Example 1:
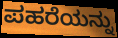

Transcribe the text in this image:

ಪಹರೆಯನ್ನು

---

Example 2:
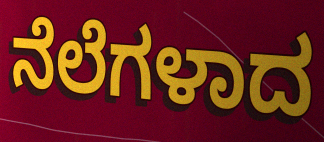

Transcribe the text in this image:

ನೆಲೆಗಳಾದ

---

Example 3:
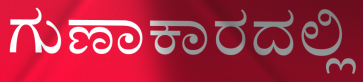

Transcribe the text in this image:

ಗುಣಾಕಾರದಲ್ಲಿ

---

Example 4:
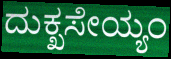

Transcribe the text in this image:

ದುಕ್ಖಸೇಯ್ಯಂ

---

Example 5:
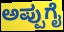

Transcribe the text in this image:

ಅಪ್ಪುಗೈ